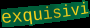
exquisivi